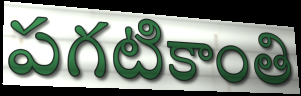
పగటికాంతి